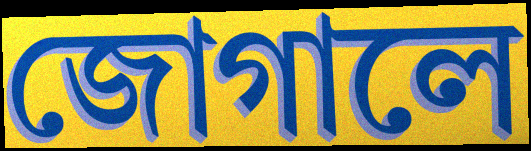
জোগালে